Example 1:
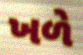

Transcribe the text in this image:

ખળે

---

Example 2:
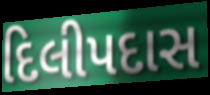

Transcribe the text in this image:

દિલીપદાસ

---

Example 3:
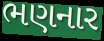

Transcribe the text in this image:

ભણનાર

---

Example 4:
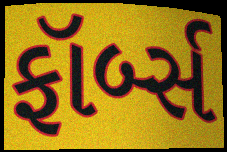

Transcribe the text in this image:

ફૉર્બ્સ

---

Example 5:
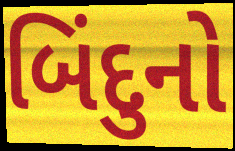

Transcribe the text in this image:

બિંદુનો